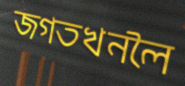
জগতখনলৈ